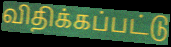
விதிக்கப்பட்டு